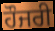
ਹੌਜਰੀ